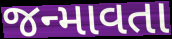
જન્માવતા